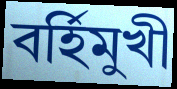
বৰ্হিমুখী